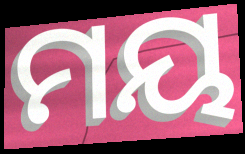
ମୟ